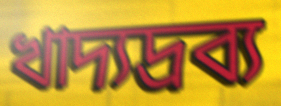
খাদ্যদ্রব্য